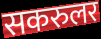
सकरुलर